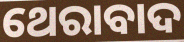
ଥେରାବାଦ